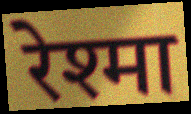
रेश्मा